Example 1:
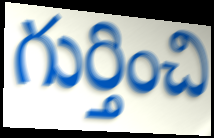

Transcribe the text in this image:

గుర్తించి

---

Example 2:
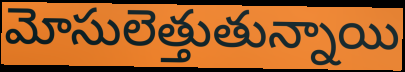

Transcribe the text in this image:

మోసులెత్తుతున్నాయి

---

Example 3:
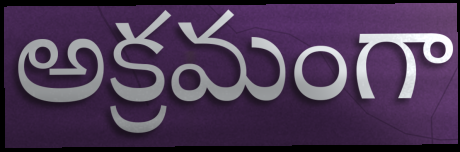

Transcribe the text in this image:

అక్రమంగా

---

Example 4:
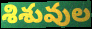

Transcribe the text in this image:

శిశువుల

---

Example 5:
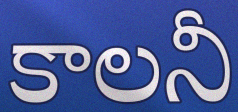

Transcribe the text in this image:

కాలనీ